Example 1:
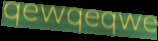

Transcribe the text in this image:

qewqeqwe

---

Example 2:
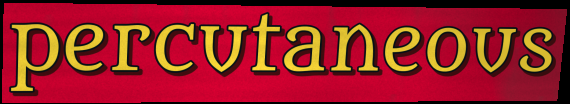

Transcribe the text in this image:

percutaneous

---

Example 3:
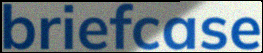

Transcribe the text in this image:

briefcase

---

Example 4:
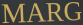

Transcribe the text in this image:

MARG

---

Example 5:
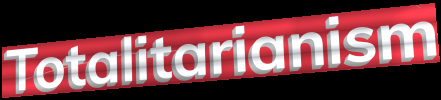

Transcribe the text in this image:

Totalitarianism